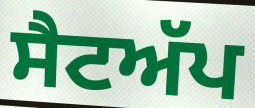
ਸੈਟਅੱਪ